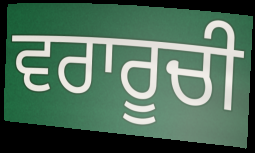
ਵਰਾਰੂਚੀ